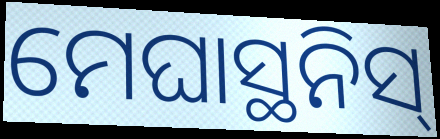
ମେଘାସ୍ଥନିସ୍